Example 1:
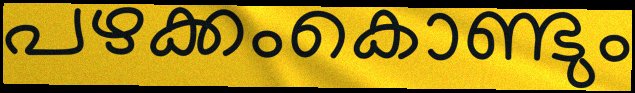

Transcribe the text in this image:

പഴക്കംകൊണ്ടും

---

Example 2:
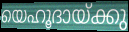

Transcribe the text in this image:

യെഹൂദായ്ക്കു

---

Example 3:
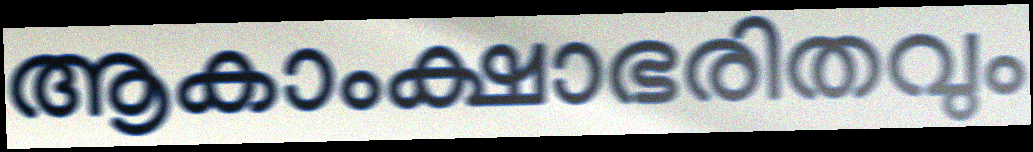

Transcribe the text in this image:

ആകാംക്ഷാഭരിതവും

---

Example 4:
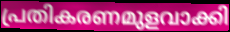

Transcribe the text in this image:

പ്രതികരണമുളവാക്കി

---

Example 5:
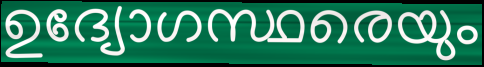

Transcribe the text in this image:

ഉദ്യോഗസ്ഥരെയും